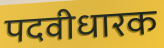
पदवीधारक